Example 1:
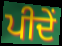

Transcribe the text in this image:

ਪੀਦੇਂ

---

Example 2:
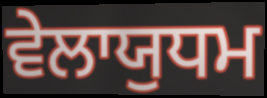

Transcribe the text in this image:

ਵੇਲਾਯੁਧਮ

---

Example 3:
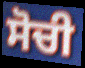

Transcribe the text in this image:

ਸੋਚੀ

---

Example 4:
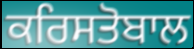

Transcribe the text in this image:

ਕਰਿਸਤੋਬਾਲ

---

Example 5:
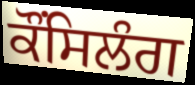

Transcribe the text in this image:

ਕੌਂਸਿਲੰਗ